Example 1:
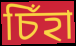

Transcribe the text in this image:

চিঁহা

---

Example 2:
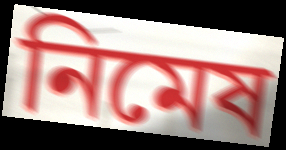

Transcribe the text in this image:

নিমেষ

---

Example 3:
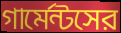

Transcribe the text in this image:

গার্মেন্টসের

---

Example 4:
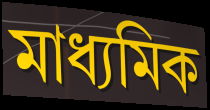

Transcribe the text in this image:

মাধ্যমিক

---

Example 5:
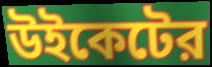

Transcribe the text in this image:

উইকেটের